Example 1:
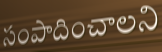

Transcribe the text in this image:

సంపాదించాలని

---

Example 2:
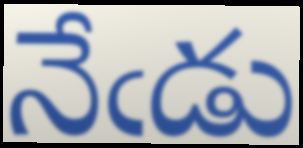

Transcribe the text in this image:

నేఁడు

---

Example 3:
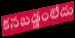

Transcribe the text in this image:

కనబడ్డంలేదు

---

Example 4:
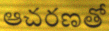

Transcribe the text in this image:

ఆచరణతో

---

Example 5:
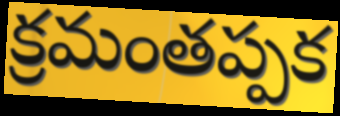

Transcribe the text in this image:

క్రమంతప్పక